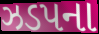
ઝડપના